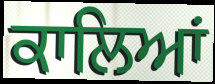
ਕਾਲਿਆਂ